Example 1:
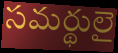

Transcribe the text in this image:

సమర్థులై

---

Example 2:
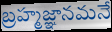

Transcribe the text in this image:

బ్రహ్మజ్ఞానమనే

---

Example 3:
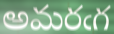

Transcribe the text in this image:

అమరఁగ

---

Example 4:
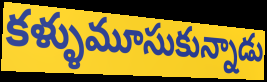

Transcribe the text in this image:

కళ్ళుమూసుకున్నాడు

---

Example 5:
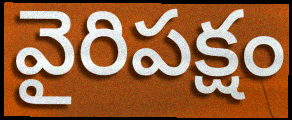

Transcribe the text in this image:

వైరిపక్షం